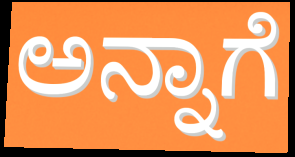
ಅನ್ನಾಗೆ